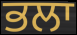
ਭਲਾ